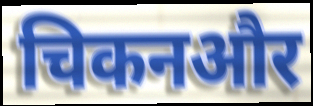
चिकनऔर